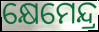
କ୍ଷେମେନ୍ଦ୍ର